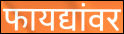
फायद्यांवर